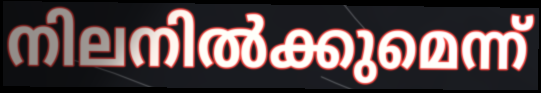
നിലനിൽക്കുമെന്ന്